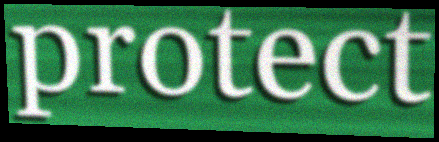
protect